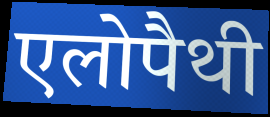
एलोपैथी